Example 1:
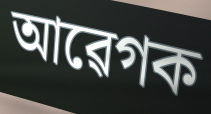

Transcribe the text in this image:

আৱেগক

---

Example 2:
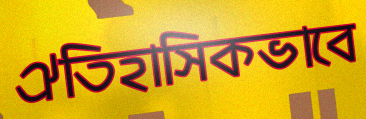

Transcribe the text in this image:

ঐতিহাসিকভাবে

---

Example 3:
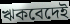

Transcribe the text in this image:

ঋকবেদেই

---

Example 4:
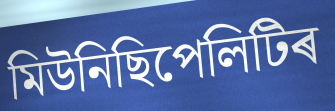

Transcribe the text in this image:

মিউনিছিপেলিটিৰ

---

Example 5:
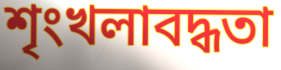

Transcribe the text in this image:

শৃংখলাবদ্ধতা